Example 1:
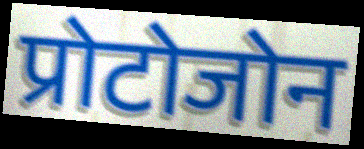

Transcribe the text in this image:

प्रोटोजोन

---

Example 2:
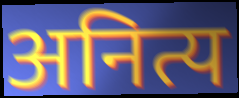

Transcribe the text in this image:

अनित्य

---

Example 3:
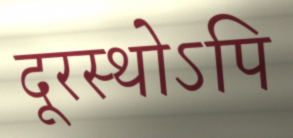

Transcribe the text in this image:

दूरस्थोऽपि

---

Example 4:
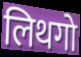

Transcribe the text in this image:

लिथगो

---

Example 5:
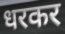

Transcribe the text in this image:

धरकर